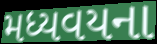
મધ્યવયના